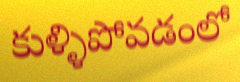
కుళ్ళిపోవడంలో